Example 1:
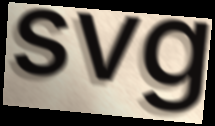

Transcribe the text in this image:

svg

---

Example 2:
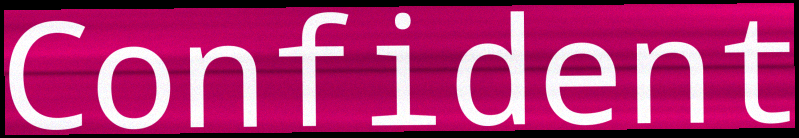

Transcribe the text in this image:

Confident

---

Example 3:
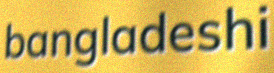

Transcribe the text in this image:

bangladeshi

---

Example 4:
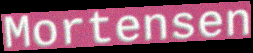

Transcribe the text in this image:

Mortensen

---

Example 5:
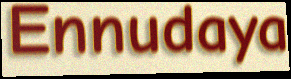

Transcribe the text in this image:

Ennudaya